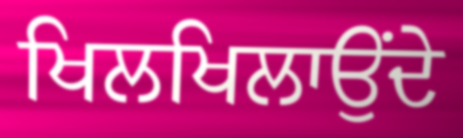
ਖਿਲਖਿਲਾਉਂਦੇ